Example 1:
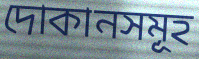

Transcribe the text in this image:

দোকানসমূহ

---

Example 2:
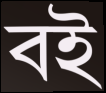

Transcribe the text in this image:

বই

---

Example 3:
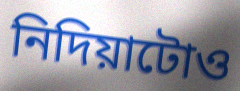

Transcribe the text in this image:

নিদিয়াটোও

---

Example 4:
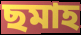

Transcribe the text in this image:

ছমাহ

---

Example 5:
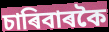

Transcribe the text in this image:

চাৰিবাৰকৈ